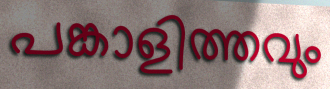
പങ്കാളിത്തവും